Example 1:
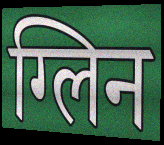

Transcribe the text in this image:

ग्लिन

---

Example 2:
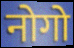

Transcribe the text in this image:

नोगो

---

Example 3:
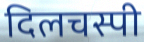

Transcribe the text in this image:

दिलचस्‍पी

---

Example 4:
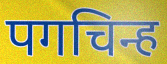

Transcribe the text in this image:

पगचिन्ह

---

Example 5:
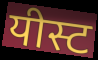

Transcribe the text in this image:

यीस्ट